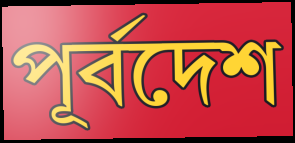
পূর্বদেশ